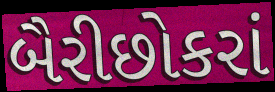
બૈરીછોકરાં